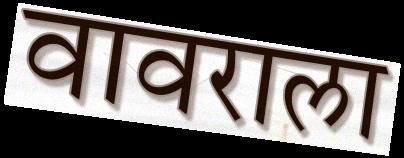
वावराला